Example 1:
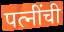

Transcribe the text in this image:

पत्नींची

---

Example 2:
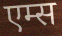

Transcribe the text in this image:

एम्स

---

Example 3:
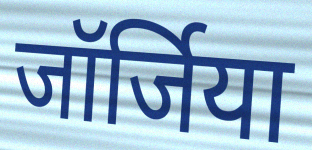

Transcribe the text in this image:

जॉर्जिया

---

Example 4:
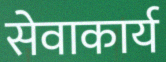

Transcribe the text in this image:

सेवाकार्य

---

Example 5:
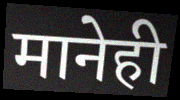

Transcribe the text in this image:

मानेही